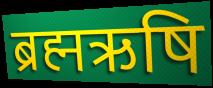
ब्रह्मऋषि